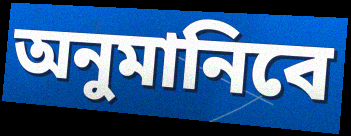
অনুমানিবে